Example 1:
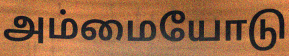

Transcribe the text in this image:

அம்மையோடு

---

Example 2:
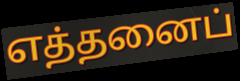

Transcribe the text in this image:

எத்தனைப்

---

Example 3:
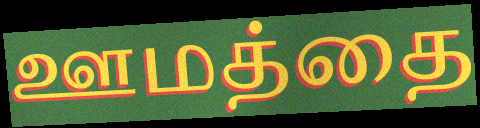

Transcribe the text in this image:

ஊமத்தை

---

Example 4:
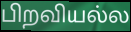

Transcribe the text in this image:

பிறவியல்ல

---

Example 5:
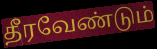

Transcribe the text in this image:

தீரவேண்டும்